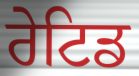
ਰੇਟਿਡ